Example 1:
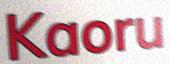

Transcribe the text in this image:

Kaoru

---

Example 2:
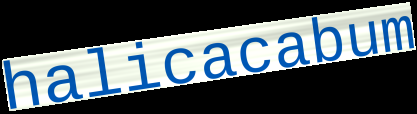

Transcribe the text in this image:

halicacabum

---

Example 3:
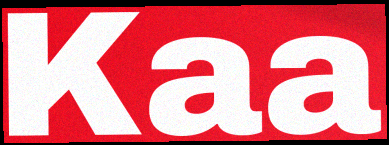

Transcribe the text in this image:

Kaa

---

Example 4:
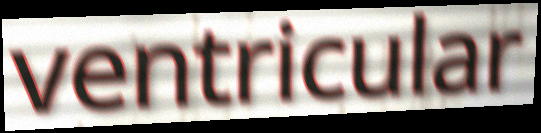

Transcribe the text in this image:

ventricular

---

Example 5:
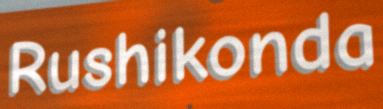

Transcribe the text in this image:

Rushikonda